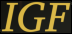
IGF